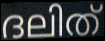
ദലിത്